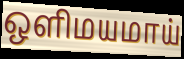
ஒளிமயமாய்